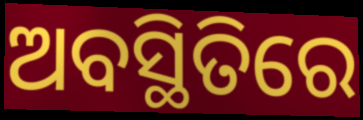
ଅବସ୍ଥିତିରେ